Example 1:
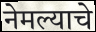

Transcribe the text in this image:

नेमल्याचे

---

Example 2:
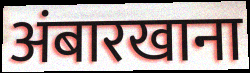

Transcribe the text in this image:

अंबारखाना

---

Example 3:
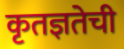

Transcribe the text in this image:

कृतज्ञतेची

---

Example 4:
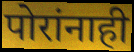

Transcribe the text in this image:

पोरांनाही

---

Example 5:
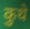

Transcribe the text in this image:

कुथे